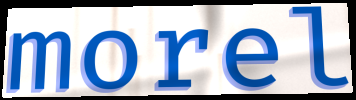
morel